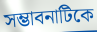
সম্ভাবনাটিকে